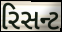
રિસન્ટ